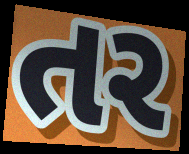
તર